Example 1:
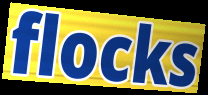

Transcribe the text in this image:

flocks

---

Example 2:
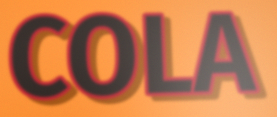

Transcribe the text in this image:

COLA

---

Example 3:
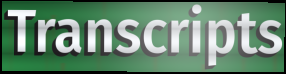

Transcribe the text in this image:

Transcripts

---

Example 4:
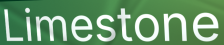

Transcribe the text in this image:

Limestone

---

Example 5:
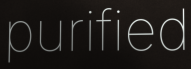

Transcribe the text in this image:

purified